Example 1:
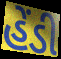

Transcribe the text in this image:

હેંડી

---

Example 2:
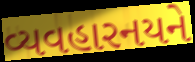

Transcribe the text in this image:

વ્યવહારનયને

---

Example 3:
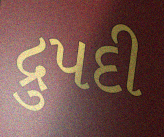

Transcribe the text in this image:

દ્રુપદી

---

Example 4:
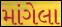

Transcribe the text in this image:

માંગેલા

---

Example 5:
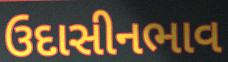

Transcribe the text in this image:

ઉદાસીનભાવ